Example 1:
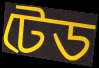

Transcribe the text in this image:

টেড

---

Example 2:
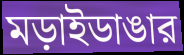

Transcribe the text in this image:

মড়াইডাঙার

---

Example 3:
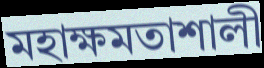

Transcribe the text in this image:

মহাক্ষমতাশালী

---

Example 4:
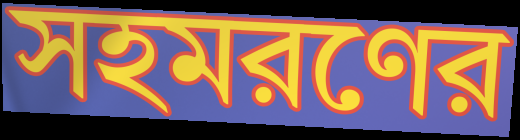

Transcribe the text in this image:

সহমরণের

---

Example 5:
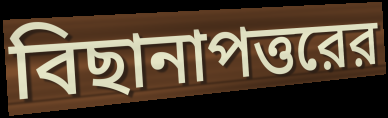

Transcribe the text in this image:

বিছানাপত্তরের